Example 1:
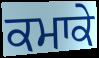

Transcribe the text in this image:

ਕਮਾਕੇ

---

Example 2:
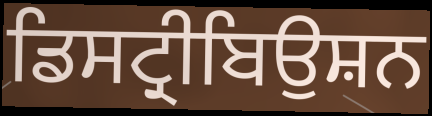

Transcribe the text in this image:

ਡਿਸਟ੍ਰੀਬਿਉਸ਼ਨ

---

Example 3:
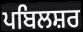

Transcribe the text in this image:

ਪਬਿਲਸ਼ਰ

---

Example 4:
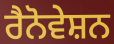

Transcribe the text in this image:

ਰੈਨੋਵੇਸ਼ਨ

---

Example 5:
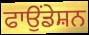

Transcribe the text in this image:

ਫਾਉਂਡੇਸ਼ਨ